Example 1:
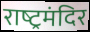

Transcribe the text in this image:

राष्ट्रमंदिर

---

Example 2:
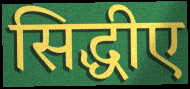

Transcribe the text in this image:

सिद्धीए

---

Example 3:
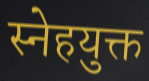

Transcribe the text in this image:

स्नेहयुक्त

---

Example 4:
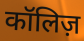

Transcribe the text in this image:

कॉलिज़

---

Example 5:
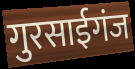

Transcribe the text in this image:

गुरसाईगंज